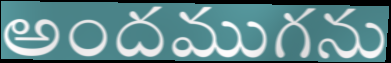
అందముగను